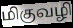
மிகுவழி